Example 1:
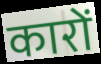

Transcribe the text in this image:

कारों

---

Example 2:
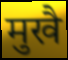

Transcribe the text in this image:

मुखै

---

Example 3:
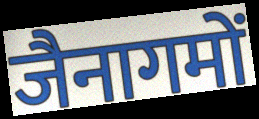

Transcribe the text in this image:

जैनागमों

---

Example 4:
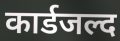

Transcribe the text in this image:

कार्डजल्द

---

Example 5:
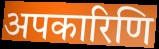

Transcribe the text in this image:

अपकारिणि